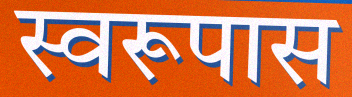
स्वरूपास